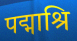
पद्माश्रि